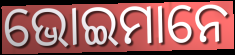
ଭୋଇମାନେ